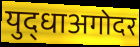
युद्धाअगोदर